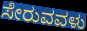
ಸೇರುವವಳು